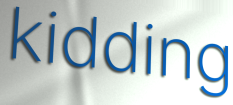
kidding